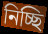
নিচ্ছি